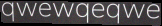
qwewqeqwe